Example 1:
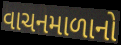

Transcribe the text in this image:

વાચનમાળાનો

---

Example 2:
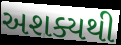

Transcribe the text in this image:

અશક્યથી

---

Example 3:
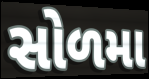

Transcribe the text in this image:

સોળમા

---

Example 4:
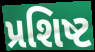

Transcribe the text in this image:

પ્રશિષ્ટ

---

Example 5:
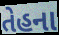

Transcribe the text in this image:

તેહના